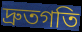
দ্রুতগতি